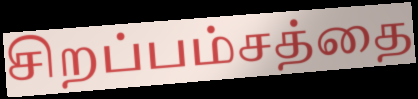
சிறப்பம்சத்தை